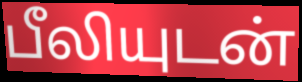
பீலியுடன்